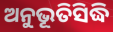
ଅନୁଭୂତିସିଦ୍ଧି